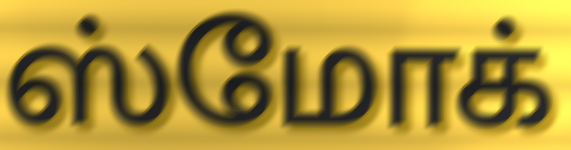
ஸ்மோக்